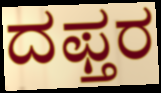
ದಫ್ತರ